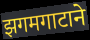
झगमगाटाने